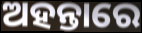
ଅହନ୍ତାରେ